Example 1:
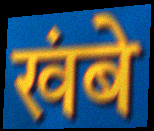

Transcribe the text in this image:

खंबे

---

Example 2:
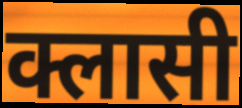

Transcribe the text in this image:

क्लासी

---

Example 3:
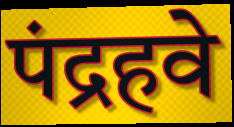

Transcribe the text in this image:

पंद्रहवे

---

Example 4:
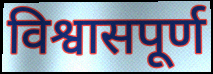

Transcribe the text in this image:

विश्वासपूर्ण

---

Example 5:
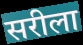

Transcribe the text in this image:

सरीला